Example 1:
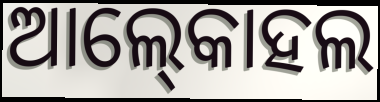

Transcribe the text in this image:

ଆଲ୍‍କୋହଲ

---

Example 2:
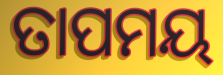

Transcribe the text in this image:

ତାପମୟ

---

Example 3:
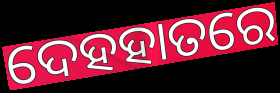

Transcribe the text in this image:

ଦେହହାତରେ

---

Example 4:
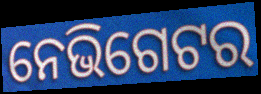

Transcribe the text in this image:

ନେଭିଗେଟର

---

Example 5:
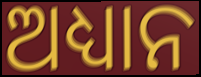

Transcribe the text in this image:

ଅଧ୍ୟାନ